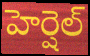
హెర్షెల్